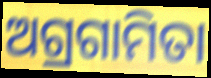
ଅଗ୍ରଗାମିତା